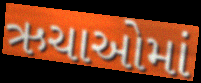
ઋચાઓમાં